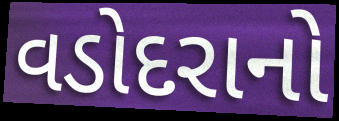
વડોદરાનો